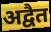
अद्वैत